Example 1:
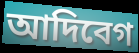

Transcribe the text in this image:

আদিবেগ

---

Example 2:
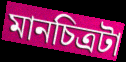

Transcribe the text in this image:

মানচিত্রটা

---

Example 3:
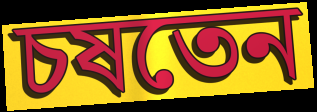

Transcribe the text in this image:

চষতেন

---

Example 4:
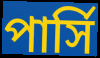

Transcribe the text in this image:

পার্সি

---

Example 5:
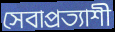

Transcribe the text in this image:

সেবাপ্রত্যাশী